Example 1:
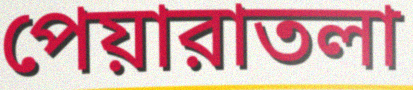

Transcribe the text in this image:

পেয়ারাতলা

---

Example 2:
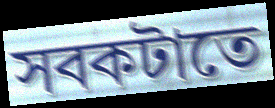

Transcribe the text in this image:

সবকটাতে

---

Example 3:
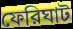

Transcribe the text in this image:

ফেরিঘাট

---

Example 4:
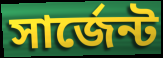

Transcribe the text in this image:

সার্জেন্ট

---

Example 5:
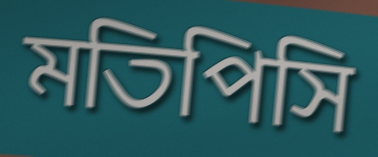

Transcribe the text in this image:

মতিপিসি